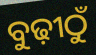
ବୁଢ଼ୀଠୁଁ